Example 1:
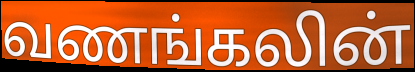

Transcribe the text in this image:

வணங்கலின்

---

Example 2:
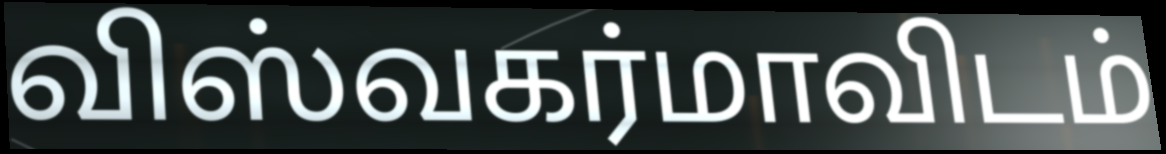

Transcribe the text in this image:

விஸ்வகர்மாவிடம்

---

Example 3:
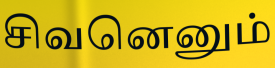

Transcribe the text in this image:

சிவனெனும்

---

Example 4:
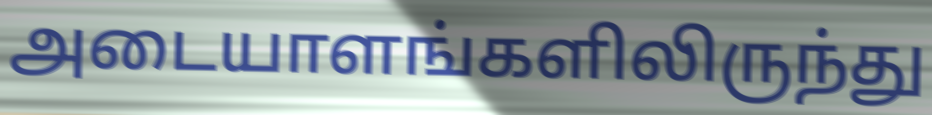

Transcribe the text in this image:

அடையாளங்களிலிருந்து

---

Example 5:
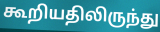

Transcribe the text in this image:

கூறியதிலிருந்து